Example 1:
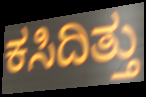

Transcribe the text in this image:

ಕಸಿದಿತ್ತು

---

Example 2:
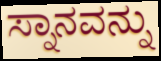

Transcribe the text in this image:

ಸ್ನಾನವನ್ನು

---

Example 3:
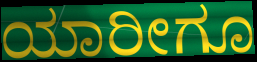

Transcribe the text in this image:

ಯಾರೀಗೂ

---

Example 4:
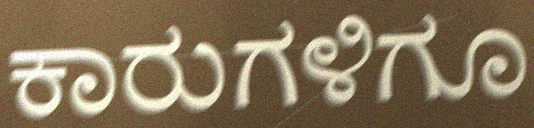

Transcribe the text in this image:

ಕಾರುಗಳಿಗೂ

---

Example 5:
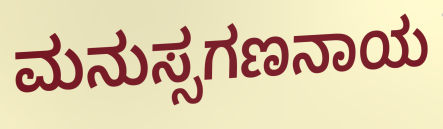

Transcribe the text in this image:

ಮನುಸ್ಸಗಣನಾಯ